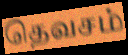
தெவசம்